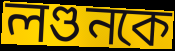
লণ্ডনকে